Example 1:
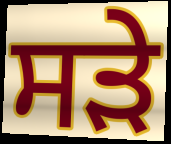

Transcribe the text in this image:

ਸੜੇ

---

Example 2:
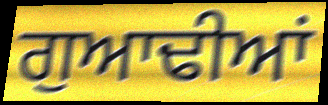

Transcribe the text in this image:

ਗੁਆਢੀਆਂ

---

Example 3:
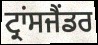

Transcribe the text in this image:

ਟ੍ਰਾਂਸਜੈਂਡਰ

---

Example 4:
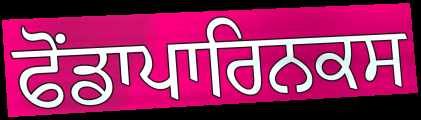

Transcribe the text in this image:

ਫੋਂਡਾਪਾਰਿਨਕਸ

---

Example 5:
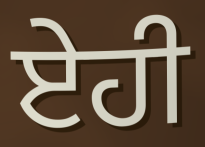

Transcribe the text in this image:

ਏਹੀ